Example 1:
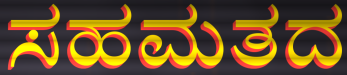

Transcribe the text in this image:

ಸಹಮತದ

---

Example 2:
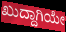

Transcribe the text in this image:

ಖುದ್ದಾಗಿಯೇ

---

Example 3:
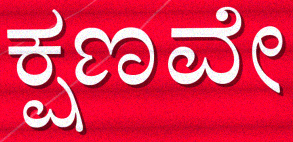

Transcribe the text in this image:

ಕ್ಷಣವೇ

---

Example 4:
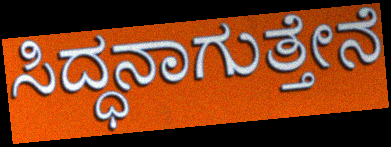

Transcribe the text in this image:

ಸಿದ್ಧನಾಗುತ್ತೇನೆ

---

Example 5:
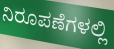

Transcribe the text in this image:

ನಿರೂಪಣೆಗಳಲ್ಲಿ